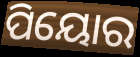
ପିୟୋର